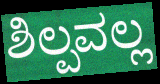
ಶಿಲ್ಪವಲ್ಲ